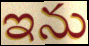
ఇను